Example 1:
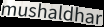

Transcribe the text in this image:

mushaldhar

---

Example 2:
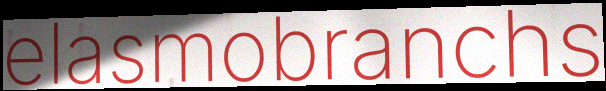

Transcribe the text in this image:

elasmobranchs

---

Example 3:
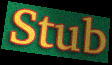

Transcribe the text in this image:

Stub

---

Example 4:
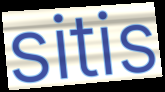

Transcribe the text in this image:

sitis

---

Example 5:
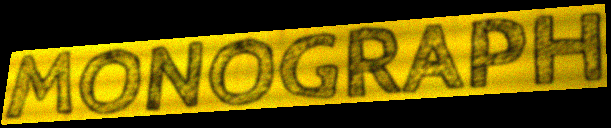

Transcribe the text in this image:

MONOGRAPH